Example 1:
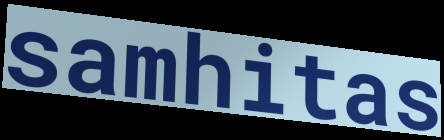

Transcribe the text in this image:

samhitas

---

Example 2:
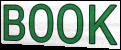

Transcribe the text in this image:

BOOK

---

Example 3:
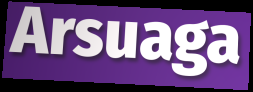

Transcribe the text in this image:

Arsuaga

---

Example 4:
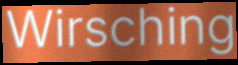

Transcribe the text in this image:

Wirsching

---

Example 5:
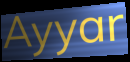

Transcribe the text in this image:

Ayyar